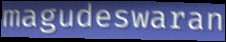
magudeswaran